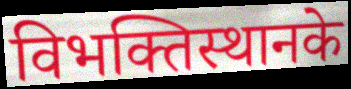
विभक्तिस्थानके